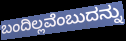
ಬಂದಿಲ್ಲವೆಂಬುದನ್ನು